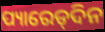
ପ୍ୟାରେଡ୍‌ଦିନ